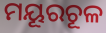
ମୟୂରଚୂଳ